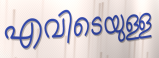
എവിടെയുള്ള